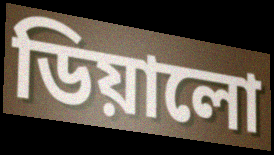
ডিয়ালো